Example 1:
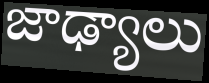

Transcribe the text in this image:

జాఢ్యాలు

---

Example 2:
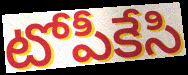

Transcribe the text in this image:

టోపీకేసి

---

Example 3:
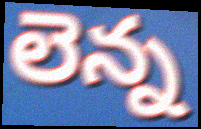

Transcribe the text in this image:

లెన్న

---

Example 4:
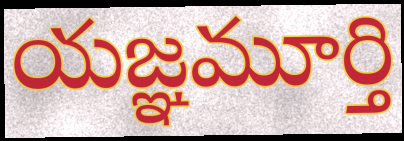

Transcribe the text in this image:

యజ్ఞమూర్తి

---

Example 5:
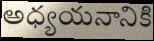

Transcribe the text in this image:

అధ్యయనానికి